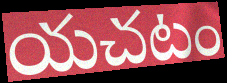
యచటం